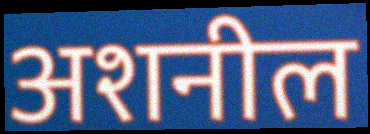
अशनील